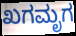
ಖಗಮೃಗ